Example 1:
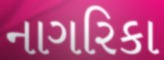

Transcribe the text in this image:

નાગરિકા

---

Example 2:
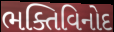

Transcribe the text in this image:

ભક્તિવિનોદ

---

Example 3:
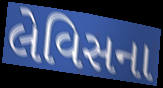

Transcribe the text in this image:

લેવિસના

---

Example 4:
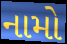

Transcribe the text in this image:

નામો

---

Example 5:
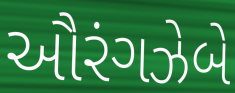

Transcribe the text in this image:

ઔરંગઝેબે